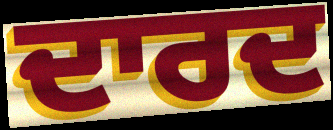
ਦਾਰਦ